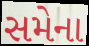
સમેના